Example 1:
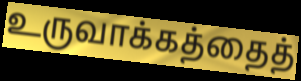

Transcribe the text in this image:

உருவாக்கத்தைத்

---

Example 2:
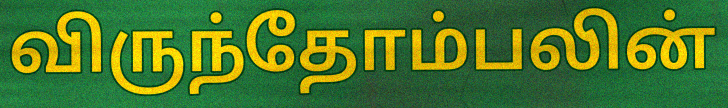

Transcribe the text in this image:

விருந்தோம்பலின்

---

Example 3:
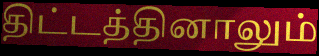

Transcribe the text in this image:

திட்டத்தினாலும்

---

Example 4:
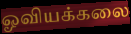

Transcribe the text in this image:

ஓவியக்கலை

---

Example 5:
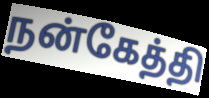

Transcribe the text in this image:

நன்கேத்தி